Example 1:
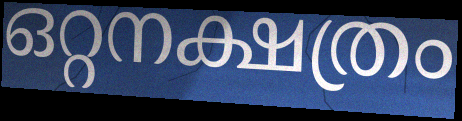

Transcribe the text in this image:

ഒറ്റനക്ഷത്രം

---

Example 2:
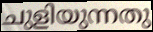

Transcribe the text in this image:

ചുളിയുന്നതു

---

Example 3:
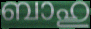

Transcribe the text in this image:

ബാഹു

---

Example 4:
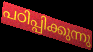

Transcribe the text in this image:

പഠിപ്പിക്കുന്നു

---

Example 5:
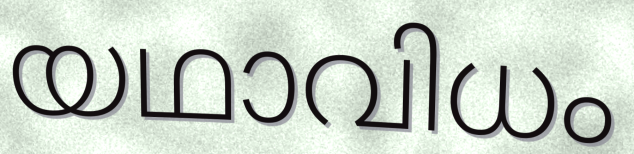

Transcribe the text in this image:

യഥാവിധം